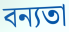
বন্যতা